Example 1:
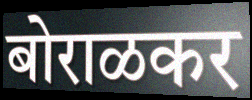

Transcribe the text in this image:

बोराळकर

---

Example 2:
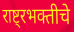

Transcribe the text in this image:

राष्ट्रभक्तीचे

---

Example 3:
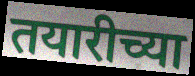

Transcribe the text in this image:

तयारीच्या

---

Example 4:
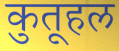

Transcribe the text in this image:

कुतूहल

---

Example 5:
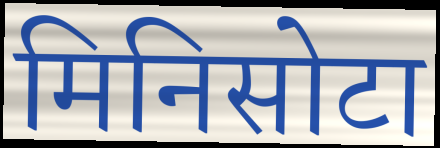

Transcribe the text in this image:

मिनिसोटा